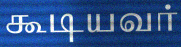
கூடியவர்